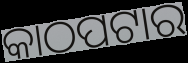
କାଠପଟାର